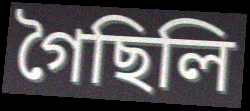
গৈছিলি